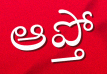
ఆప్తో